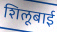
शिलूबाई